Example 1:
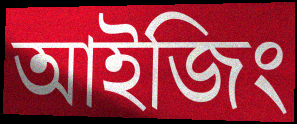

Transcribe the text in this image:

আইজিং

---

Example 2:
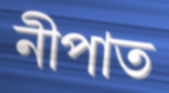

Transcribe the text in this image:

নীপাত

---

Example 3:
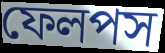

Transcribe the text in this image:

ফেলপস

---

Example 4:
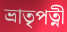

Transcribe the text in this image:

ভ্রাতৃপত্নী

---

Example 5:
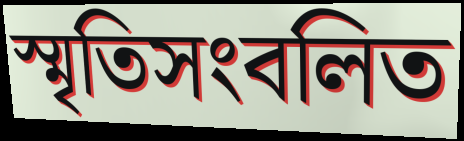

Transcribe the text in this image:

স্মৃতিসংবলিত